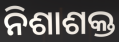
ନିଶାଶକ୍ତ